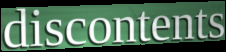
discontents